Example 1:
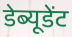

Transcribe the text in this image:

डेब्यूडेंट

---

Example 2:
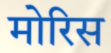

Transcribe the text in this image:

मोरिस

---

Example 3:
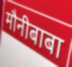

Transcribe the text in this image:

मौनीबाबा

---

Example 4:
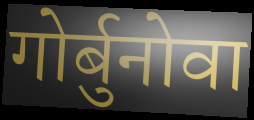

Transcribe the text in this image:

गोर्बुनोवा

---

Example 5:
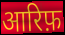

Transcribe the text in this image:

आरिफ़